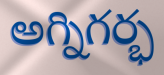
అగ్నిగర్భ